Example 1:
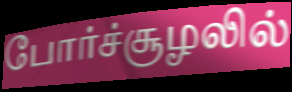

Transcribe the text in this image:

போர்ச்சூழலில்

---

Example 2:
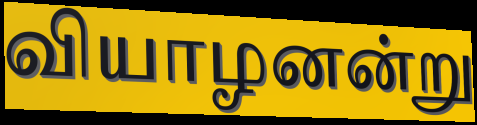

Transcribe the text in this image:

வியாழனன்று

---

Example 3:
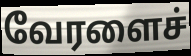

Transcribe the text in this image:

வேரளைச்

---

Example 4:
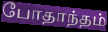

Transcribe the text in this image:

போதாந்தம்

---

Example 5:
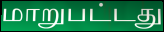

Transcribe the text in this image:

மாறுபட்டது